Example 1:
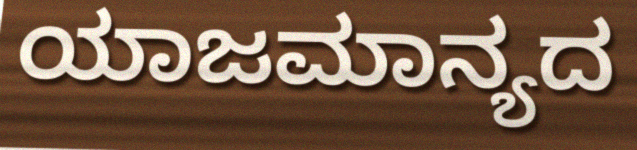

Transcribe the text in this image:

ಯಾಜಮಾನ್ಯದ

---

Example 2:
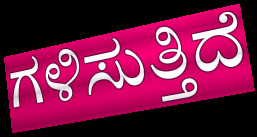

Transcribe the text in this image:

ಗಳಿಸುತ್ತಿದೆ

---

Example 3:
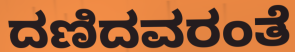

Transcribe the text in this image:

ದಣಿದವರಂತೆ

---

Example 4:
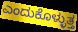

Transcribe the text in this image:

ಎಂದುಕೊಳ್ಳುತ್ತ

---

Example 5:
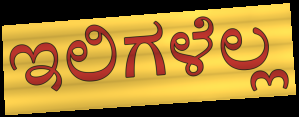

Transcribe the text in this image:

ಇಲಿಗಳೆಲ್ಲ